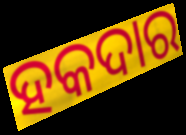
ହକଦାର